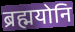
ब्रह्मयोनि